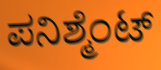
ಪನಿಶ್ಮೆಂಟ್